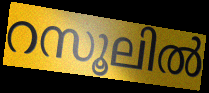
റസൂലിൽ